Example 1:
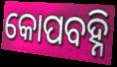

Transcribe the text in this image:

କୋପବହ୍ନି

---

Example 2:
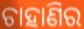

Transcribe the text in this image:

ଚାହାଣିର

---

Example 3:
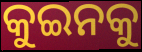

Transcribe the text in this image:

କୁଇନକୁ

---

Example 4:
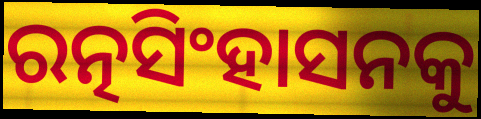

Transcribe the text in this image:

ରତ୍ନସିଂହାସନକୁ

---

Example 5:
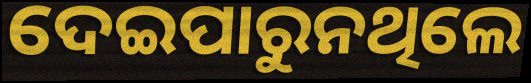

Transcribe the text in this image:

ଦେଇପାରୁନଥିଲେ